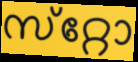
സ്‌റ്റോ